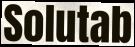
Solutab